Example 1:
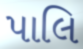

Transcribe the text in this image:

પાલિ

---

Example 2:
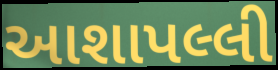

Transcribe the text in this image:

આશાપલ્લી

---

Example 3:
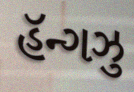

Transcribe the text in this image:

હૅન્ગઝુ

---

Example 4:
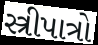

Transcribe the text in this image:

સ્ત્રીપાત્રો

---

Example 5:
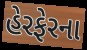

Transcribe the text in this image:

હેરફેરના